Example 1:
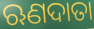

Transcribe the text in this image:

ଋଣଦାତା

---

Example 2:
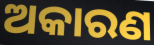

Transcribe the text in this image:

ଅକାରଣ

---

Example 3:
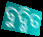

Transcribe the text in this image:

ବୁଦ୍ଧିତ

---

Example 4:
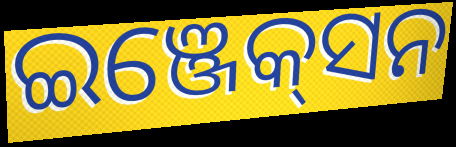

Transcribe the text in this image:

ଇଞ୍ଜେକ୍‌ସନ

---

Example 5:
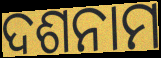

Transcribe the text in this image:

ଦଶନାମ